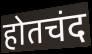
होतचंद